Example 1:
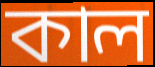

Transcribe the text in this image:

কাল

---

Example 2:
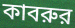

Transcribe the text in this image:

কাবরুর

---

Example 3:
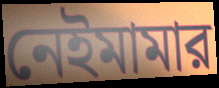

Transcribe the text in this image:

নেইমামার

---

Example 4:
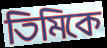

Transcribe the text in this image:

তিমিকে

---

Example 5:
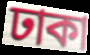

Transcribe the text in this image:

ঢাকা